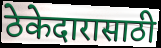
ठेकेदारासाठी